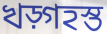
খড়্গহস্ত